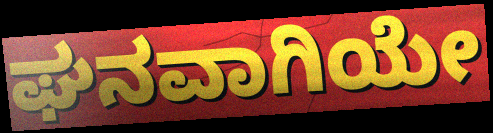
ಘನವಾಗಿಯೇ